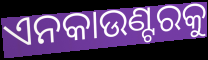
ଏନକାଉଣ୍ଟରକୁ